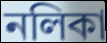
নলিকা